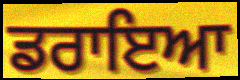
ਡਰਾਇਆ